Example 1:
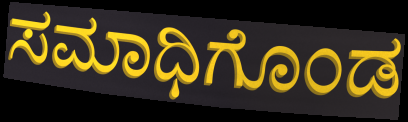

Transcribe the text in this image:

ಸಮಾಧಿಗೊಂಡ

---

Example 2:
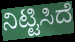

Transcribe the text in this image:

ನಿಟ್ಟಿಸಿದೆ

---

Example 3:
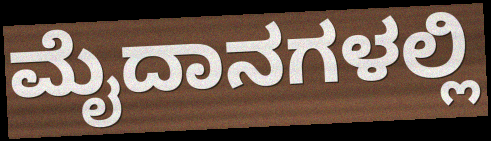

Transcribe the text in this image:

ಮೈದಾನಗಳಲ್ಲಿ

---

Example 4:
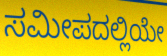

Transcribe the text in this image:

ಸಮೀಪದಲ್ಲಿಯೇ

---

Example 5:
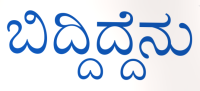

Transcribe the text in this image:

ಬಿದ್ದಿದ್ದೆನು